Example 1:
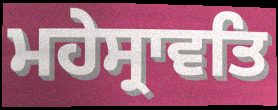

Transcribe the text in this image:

ਮਹੇਸ੍ਰਾਵਤਿ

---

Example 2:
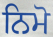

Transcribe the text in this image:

ਨਿਮੋ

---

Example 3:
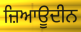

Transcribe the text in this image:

ਜ਼ਿਆਊਦੀਨ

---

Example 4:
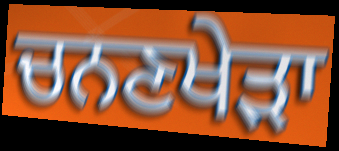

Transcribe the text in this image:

ਚਨਣਖੇੜਾ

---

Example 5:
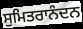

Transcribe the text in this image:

ਸੁਮਿਤਰਾਨੰਦਨ